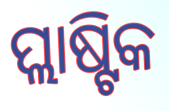
ପ୍ଲାଷ୍ଟିକ